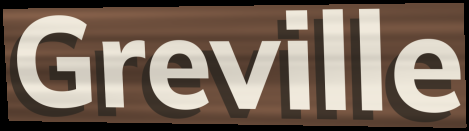
Greville